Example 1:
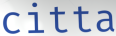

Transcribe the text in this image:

citta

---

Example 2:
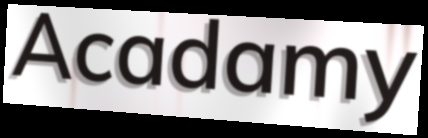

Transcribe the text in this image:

Acadamy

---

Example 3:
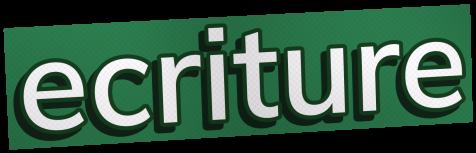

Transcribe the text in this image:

ecriture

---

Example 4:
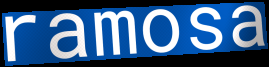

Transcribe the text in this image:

ramosa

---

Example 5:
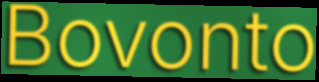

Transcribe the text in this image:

Bovonto